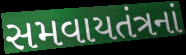
સમવાયતંત્રનાં